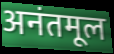
अनंतमूल